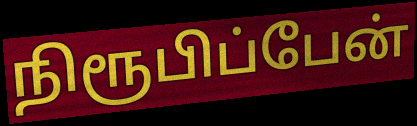
நிரூபிப்பேன்